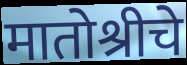
मातोश्रीचे